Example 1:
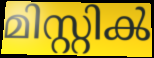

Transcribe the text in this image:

മിസ്റ്റിൿ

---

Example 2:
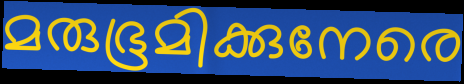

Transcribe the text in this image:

മരുഭൂമിക്കുനേരെ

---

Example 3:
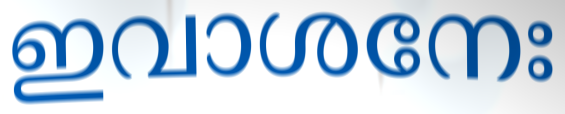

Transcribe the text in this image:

ഇവാശനേഃ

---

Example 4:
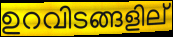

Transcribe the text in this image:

ഉറവിടങ്ങളില്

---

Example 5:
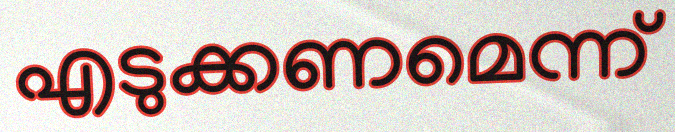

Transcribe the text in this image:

എടുക്കണമെന്ന്